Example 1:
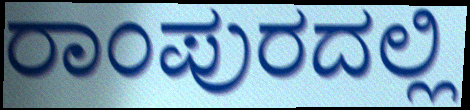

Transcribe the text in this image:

ರಾಂಪುರದಲ್ಲಿ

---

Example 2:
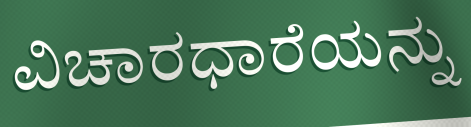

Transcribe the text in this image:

ವಿಚಾರಧಾರೆಯನ್ನು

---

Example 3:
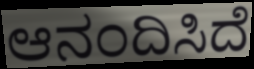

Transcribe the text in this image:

ಆನಂದಿಸಿದೆ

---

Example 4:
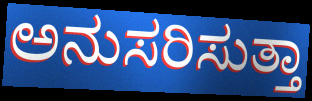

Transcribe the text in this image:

ಅನುಸರಿಸುತ್ತಾ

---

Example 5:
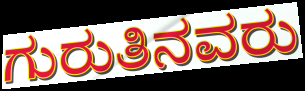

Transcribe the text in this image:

ಗುರುತಿನವರು